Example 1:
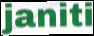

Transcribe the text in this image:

janiti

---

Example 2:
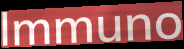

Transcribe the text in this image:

Immuno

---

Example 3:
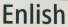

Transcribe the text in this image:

Enlish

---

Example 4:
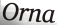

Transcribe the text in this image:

Orna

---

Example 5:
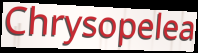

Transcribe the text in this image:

Chrysopelea